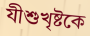
যীশুখৃষ্টকে